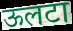
ऊलटा